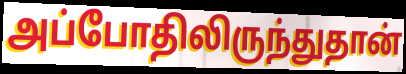
அப்போதிலிருந்துதான்